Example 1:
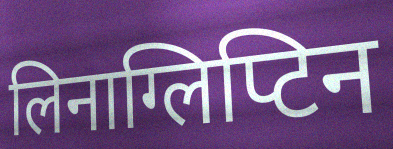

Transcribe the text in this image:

लिनाग्लिप्टिन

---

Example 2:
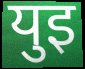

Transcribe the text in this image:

युइ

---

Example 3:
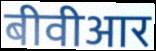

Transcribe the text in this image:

बीवीआर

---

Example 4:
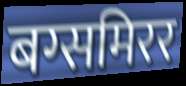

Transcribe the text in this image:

बग्समिरर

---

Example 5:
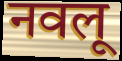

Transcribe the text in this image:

नवलू